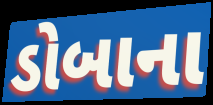
ડોબાના